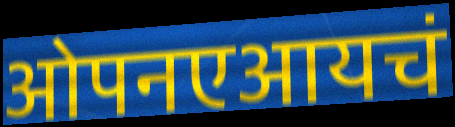
ओपनएआयचं